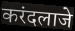
करंदलाजे